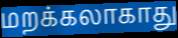
மறக்கலாகாது